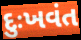
દુઃખવંત